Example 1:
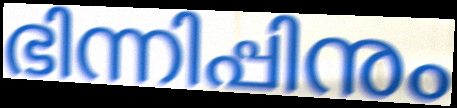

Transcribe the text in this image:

ഭിന്നിപ്പിനും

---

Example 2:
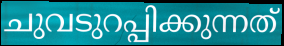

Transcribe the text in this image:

ചുവടുറപ്പിക്കുന്നത്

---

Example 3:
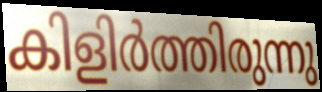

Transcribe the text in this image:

കിളിർത്തിരുന്നു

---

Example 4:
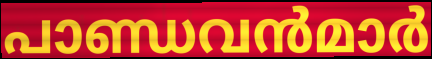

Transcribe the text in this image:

പാണ്ഡവൻമാർ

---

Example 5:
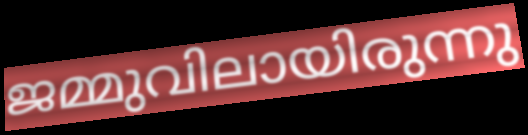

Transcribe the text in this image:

ജമ്മുവിലായിരുന്നു